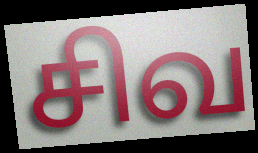
சிவ